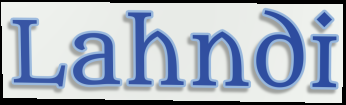
Lahndi